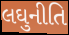
લઘુનીતિ